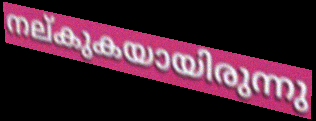
നല്കുകയായിരുന്നു